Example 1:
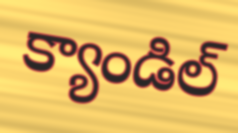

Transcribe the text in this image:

క్యాండిల్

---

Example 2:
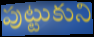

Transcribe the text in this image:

పుట్టుకుని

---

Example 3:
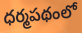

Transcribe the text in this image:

ధర్మపథంలో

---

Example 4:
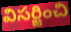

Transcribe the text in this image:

విసర్జించి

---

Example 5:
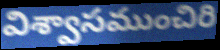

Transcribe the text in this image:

విశ్వాసముంచిరి